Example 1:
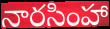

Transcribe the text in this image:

నారసింహా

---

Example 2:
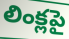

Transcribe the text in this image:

లింక్లపై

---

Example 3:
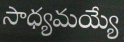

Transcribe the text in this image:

సాధ్యమయ్యే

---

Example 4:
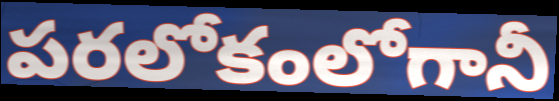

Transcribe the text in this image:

పరలోకంలోగానీ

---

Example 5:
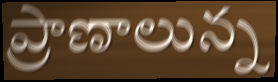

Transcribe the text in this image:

ప్రాణాలున్న